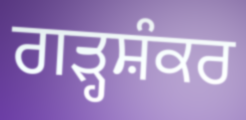
ਗੜ੍ਹਸ਼ੰਕਰ